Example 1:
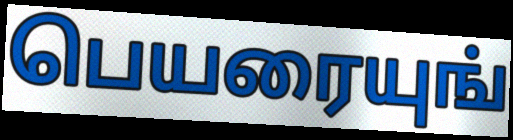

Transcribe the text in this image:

பெயரையுங்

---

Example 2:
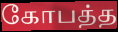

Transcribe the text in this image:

கோபத்த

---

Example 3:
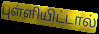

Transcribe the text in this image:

புள்ளியிட்டால்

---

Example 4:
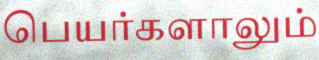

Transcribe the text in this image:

பெயர்களாலும்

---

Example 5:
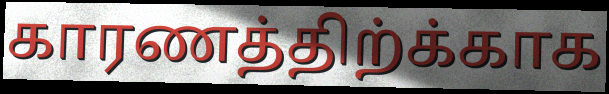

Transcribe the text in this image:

காரணத்திற்க்காக